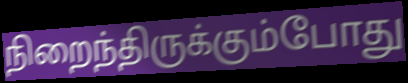
நிறைந்திருக்கும்போது